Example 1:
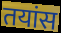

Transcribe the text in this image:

तयांस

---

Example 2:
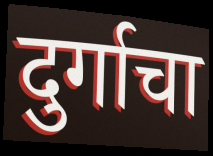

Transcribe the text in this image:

दुर्गाचा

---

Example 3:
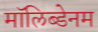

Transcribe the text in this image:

मॉलिब्डेनम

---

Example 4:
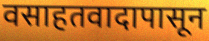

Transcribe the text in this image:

वसाहतवादापासून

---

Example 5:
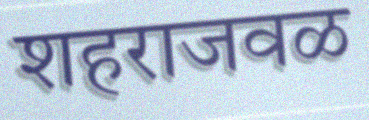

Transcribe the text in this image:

शहराजवळ